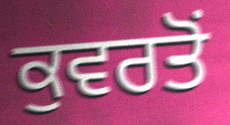
ਕੁਵਰਤੋਂ